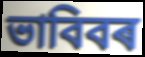
ভাবিবৰ